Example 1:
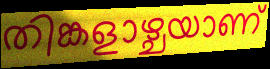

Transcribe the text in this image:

തിങ്കളാഴ്ചയാണ്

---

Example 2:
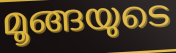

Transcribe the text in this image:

മൂങ്ങയുടെ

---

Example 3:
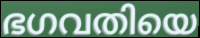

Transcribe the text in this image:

ഭഗവതിയെ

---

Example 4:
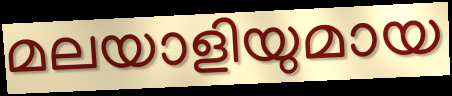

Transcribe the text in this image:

മലയാളിയുമായ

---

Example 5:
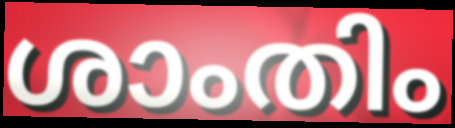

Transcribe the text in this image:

ശാംതിം